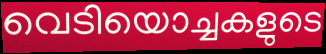
വെടിയൊച്ചകളുടെ